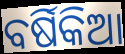
ବର୍ଷିକିଆ